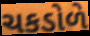
ચકડોળે